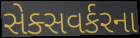
સેક્સવર્કરના